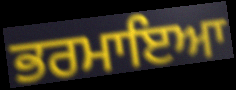
ਭਰਮਾਇਆ